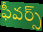
ఫీవర్స్